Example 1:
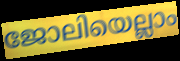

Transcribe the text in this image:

ജോലിയെല്ലാം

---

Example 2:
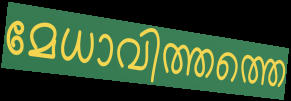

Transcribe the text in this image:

മേധാവിത്തത്തെ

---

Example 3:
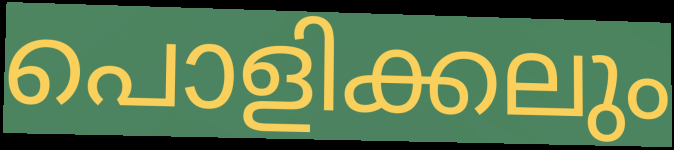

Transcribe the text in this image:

പൊളിക്കലും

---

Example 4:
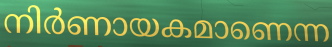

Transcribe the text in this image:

നിർണായകമാണെന്ന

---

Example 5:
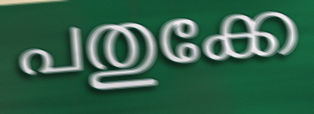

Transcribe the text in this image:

പതുക്കേ